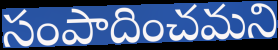
సంపాదించమని